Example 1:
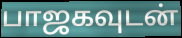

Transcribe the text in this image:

பாஜகவுடன்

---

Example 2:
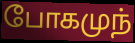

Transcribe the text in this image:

போகமுந்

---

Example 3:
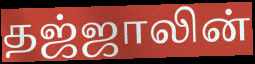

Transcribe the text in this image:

தஜ்ஜாலின்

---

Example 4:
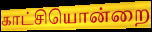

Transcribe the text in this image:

காட்சியொன்றை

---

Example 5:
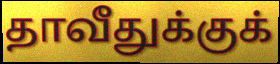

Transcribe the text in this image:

தாவீதுக்குக்